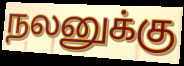
நலனுக்கு